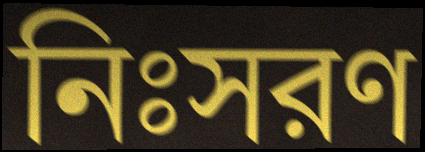
নিঃসরণ